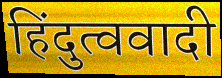
हिंदुत्ववादी